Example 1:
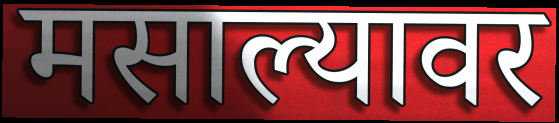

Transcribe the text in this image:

मसाल्यावर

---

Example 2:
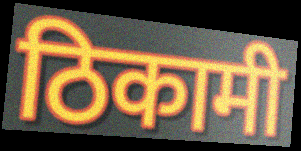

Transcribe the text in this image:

ठिकामी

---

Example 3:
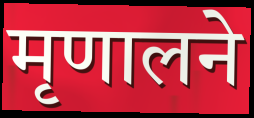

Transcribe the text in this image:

मृणालने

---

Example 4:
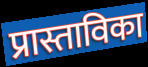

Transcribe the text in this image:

प्रास्ताविका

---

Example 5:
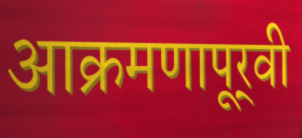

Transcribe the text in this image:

आक्रमणापूर्वी